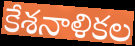
కేశనాళికల